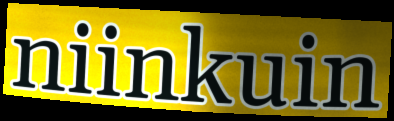
niinkuin